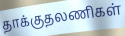
தாக்குதலணிகள்